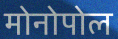
मोनोपोल